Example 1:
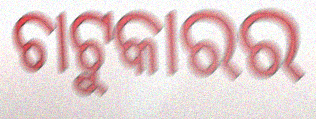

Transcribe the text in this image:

ଚାଟୁକାରର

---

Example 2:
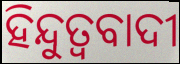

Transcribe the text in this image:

ହିନ୍ଦୁତ୍ୱବାଦୀ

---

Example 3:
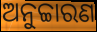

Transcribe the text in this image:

ଅନୁଚ୍ଚାରଣ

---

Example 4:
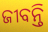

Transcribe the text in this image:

ଜୀବନ୍ତି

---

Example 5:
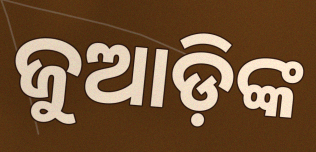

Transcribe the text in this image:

ଜୁଆଡ଼ିଙ୍କ